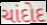
ચાંદોદ